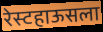
रेस्टहाऊसला